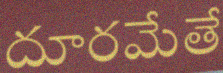
దూరమేతే